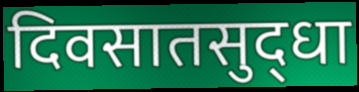
दिवसातसुद्धा